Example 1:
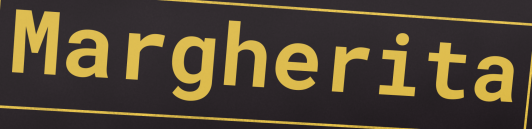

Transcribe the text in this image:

Margherita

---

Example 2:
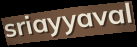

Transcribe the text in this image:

sriayyaval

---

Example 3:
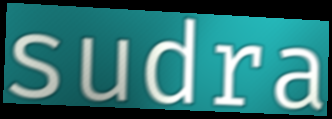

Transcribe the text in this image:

sudra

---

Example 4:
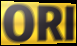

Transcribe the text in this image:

ORI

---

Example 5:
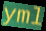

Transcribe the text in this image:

yml